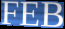
FEB